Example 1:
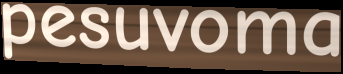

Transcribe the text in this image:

pesuvoma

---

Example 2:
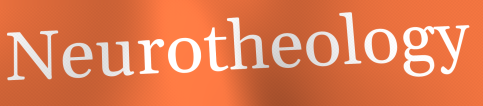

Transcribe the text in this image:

Neurotheology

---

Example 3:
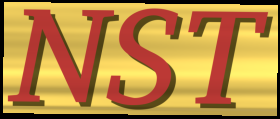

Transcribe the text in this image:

NST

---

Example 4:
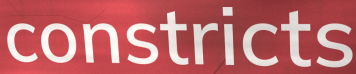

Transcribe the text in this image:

constricts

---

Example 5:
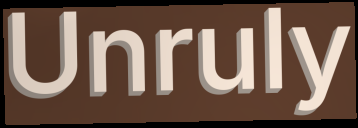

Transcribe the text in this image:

Unruly